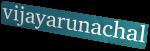
vijayarunachal